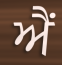
ਐਂ